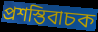
প্রশস্তিবাচক